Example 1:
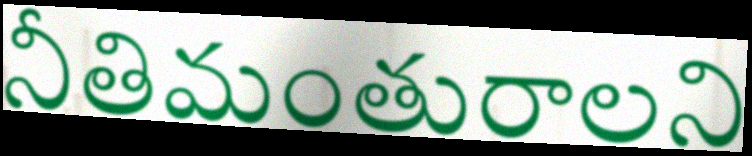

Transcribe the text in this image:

నీతిమంతురాలని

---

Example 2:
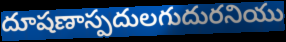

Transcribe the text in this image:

దూషణాస్పదులగుదురనియు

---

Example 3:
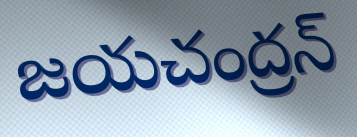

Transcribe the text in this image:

జయచంద్రన్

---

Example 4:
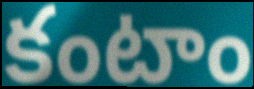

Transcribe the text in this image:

కంటాం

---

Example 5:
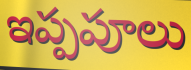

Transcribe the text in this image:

ఇప్పపూలు